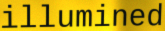
illumined